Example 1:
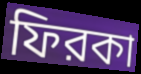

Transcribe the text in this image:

ফিরকা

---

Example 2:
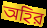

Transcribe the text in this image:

অহির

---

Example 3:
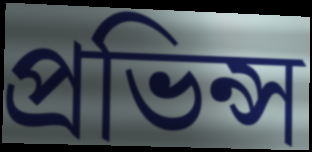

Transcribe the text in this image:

প্রভিন্স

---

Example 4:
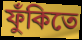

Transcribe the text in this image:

ফুঁকিতে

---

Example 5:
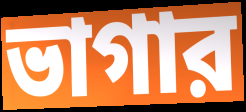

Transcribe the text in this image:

ভাগার